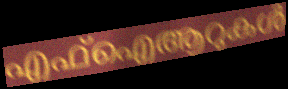
എഫ്ഐആറുകൾ